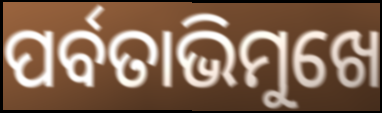
ପର୍ବତାଭିମୁଖେ